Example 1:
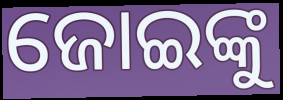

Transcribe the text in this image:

ଜୋଇଙ୍କୁ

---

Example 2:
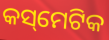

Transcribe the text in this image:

କସ୍‌ମେଟିକ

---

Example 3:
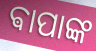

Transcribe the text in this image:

ଵାପାଙ୍କ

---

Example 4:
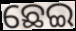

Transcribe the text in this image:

ଛେଇ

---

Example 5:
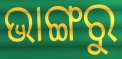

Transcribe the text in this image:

ଭାଙ୍ଗରୁ